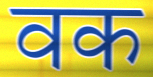
वक